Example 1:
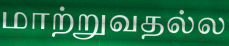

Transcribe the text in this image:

மாற்றுவதல்ல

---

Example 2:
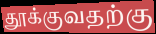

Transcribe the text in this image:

தூக்குவதற்கு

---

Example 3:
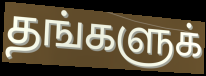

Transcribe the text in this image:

தங்களுக்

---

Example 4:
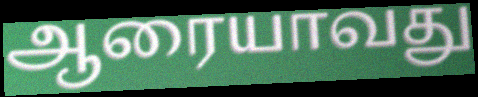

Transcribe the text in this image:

ஆரையாவது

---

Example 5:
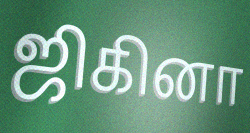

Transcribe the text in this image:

ஜிகினா